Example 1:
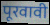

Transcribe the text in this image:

पूरवावी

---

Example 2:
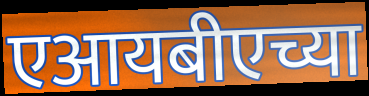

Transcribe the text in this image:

एआयबीएच्या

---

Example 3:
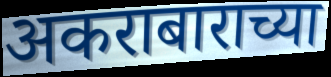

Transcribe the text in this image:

अकराबाराच्या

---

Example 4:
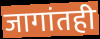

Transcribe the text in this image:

जागांतही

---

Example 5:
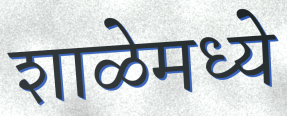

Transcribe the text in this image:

शाळेमध्ये